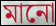
মানো